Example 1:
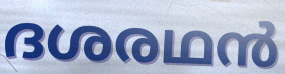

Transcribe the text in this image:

ദശരഥൻ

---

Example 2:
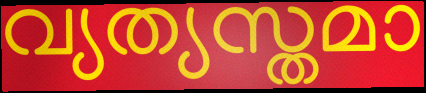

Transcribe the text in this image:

വ്യത്യസ്തമാ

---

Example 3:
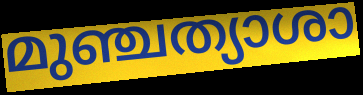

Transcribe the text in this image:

മുഞ്ചത്യാശാ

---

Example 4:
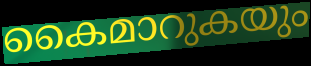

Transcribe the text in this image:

കൈമാറുകയും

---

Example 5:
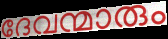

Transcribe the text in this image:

ദേവന്മാരും